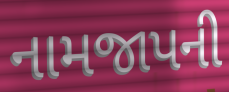
નામજાપની